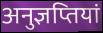
अनुज्ञप्तियां